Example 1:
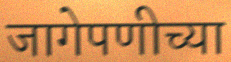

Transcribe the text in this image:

जागेपणीच्या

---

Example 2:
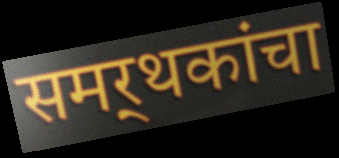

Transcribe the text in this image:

समर्थकांचा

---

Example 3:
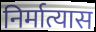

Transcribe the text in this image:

निर्मात्यास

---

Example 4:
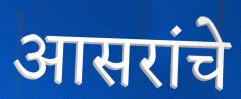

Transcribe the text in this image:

आसरांचे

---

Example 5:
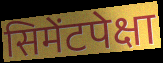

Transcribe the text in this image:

सिमेंटपेक्षा